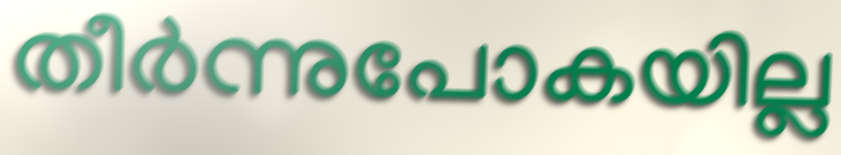
തീർന്നുപോകയില്ല